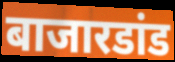
बाजारडांड